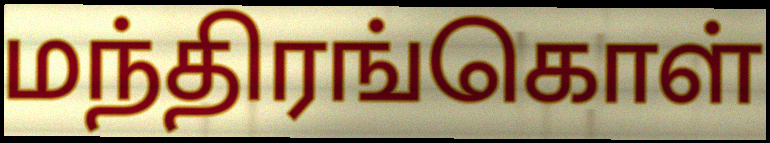
மந்திரங்கொள்